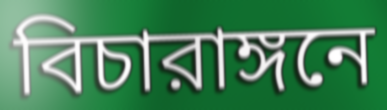
বিচারাঙ্গনে